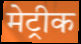
मेट्रीक